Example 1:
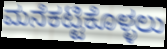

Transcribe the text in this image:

ಮನೆಕಟ್ಟಿಕೊಳ್ಳಲು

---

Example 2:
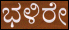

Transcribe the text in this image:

ಭಳಿರೇ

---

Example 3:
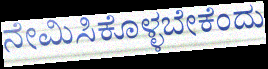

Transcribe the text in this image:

ನೇಮಿಸಿಕೊಳ್ಳಬೇಕೆಂದು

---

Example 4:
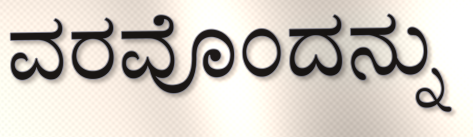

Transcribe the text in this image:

ವರವೊಂದನ್ನು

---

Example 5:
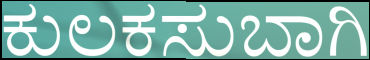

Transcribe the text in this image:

ಕುಲಕಸುಬಾಗಿ